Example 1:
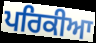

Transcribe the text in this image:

ਪਰਿਕੀਆ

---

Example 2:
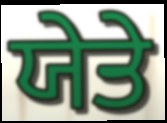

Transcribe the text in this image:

ਯੇਤੇ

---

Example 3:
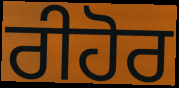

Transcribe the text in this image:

ਰੀਹੋਰ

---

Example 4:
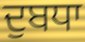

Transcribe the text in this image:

ਦੁਬਧਾ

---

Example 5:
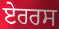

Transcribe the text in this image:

ਏਰਰਸ